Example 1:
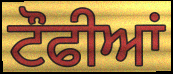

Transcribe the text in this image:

ਟੌਫੀਆਂ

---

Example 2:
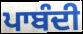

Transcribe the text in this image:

ਪਾਬੰਦੀ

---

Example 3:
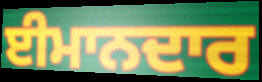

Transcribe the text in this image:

ਈਮਾਨਦਾਰ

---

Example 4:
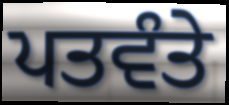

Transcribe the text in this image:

ਪਤਵੰਤੇ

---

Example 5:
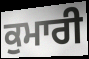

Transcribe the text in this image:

ਕੁਮਾਰੀ